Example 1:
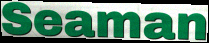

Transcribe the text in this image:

Seaman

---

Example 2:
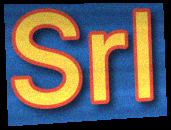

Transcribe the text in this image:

Srl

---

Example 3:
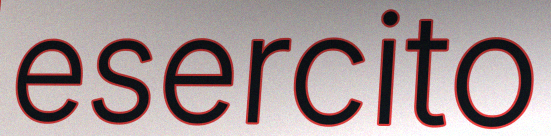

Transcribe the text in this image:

esercito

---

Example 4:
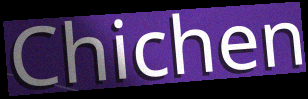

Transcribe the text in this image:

Chichen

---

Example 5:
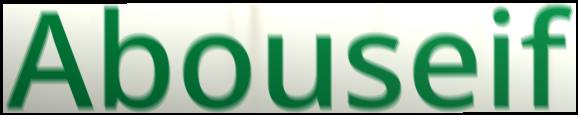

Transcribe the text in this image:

Abouseif